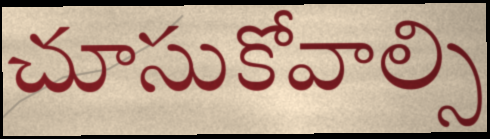
చూసుకోవాల్సి